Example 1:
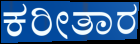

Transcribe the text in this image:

ಕರೀತಾರ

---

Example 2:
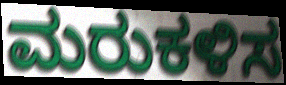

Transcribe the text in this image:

ಮರುಕಳಿಸ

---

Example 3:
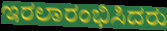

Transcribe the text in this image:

ಇರಲಾರಂಭಿಸಿದರು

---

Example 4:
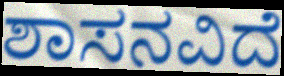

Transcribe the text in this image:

ಶಾಸನವಿದೆ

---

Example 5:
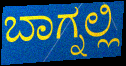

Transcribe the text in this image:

ಬಾಗ್ನಲ್ಲಿ